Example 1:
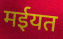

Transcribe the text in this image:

मईयत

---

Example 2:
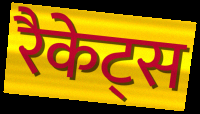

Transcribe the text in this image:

रैकेट्स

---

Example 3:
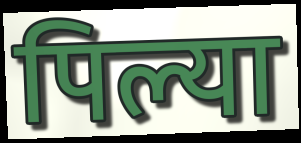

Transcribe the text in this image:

पिल्या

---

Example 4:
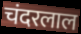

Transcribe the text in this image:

चंदरलाल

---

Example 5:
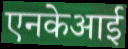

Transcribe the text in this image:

एनकेआई